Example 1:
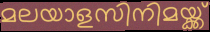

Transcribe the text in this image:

മലയാളസിനിമയ്ക്ക്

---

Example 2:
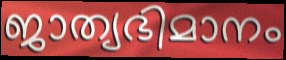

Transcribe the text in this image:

ജാത്യഭിമാനം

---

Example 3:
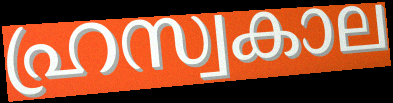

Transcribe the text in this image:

ഹ്രസ്വകാല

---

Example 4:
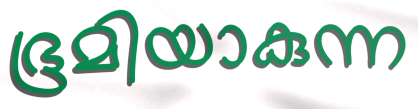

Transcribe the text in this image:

ഭൂമിയാകുന്ന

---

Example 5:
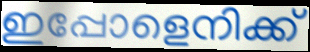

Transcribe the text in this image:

ഇപ്പോളെനിക്ക്